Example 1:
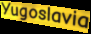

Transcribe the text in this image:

Yugoslavia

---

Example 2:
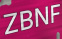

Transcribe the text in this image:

ZBNF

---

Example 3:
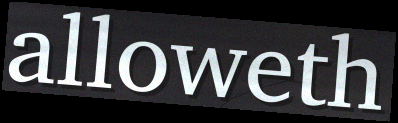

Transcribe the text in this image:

alloweth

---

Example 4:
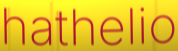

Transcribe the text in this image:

hathelio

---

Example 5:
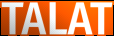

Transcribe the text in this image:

TALAT